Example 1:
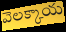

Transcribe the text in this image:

వెలక్కాయ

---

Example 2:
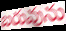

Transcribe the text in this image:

బరువును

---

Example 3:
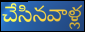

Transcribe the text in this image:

చేసినవాళ్ల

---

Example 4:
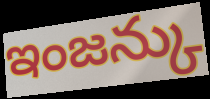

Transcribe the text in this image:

ఇంజన్కు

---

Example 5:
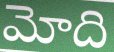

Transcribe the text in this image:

మోది